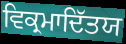
ਵਿਕ੍ਰਮਾਦਿੱਤਯ